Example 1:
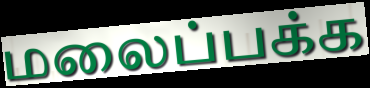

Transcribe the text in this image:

மலைப்பக்க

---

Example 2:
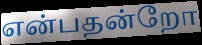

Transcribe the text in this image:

என்பதன்றோ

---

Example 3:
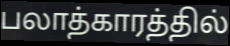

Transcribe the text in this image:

பலாத்காரத்தில்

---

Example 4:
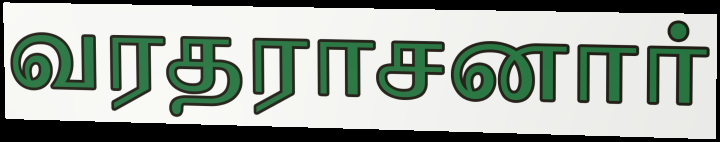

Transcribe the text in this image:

வரதராசனார்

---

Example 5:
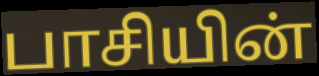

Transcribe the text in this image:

பாசியின்